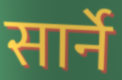
सार्ने